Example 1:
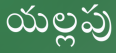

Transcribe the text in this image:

యల్లపు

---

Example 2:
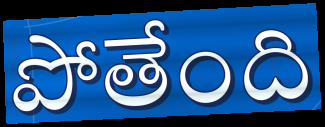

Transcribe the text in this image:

పోతేంది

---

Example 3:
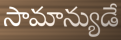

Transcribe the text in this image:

సామాన్యుడే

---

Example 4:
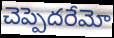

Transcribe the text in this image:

చెప్పెదరేమో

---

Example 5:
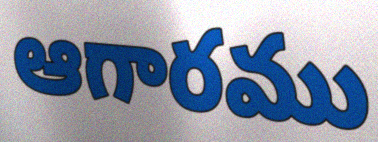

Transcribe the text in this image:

ఆగారము